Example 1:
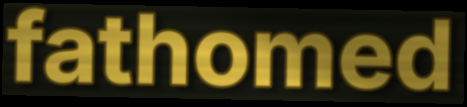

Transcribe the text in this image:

fathomed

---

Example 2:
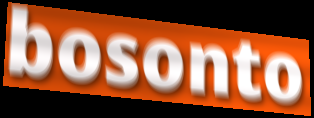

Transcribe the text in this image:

bosonto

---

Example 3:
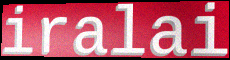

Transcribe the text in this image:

iralai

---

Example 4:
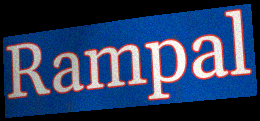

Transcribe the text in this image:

Rampal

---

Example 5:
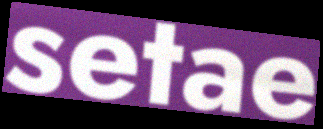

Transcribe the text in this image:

setae